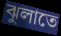
ঝুলাতে